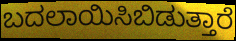
ಬದಲಾಯಿಸಿಬಿಡುತ್ತಾರೆ